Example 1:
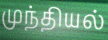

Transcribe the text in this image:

முந்தியல்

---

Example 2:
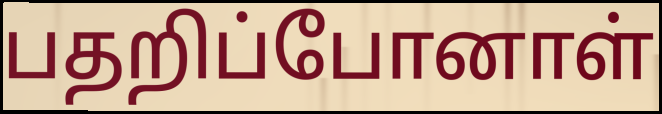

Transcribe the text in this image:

பதறிப்போனாள்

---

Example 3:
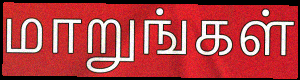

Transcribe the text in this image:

மாறுங்கள்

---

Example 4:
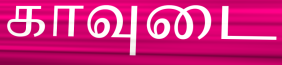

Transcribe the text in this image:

காவுடை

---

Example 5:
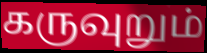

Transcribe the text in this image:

கருவுறும்